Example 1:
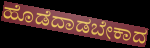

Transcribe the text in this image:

ಹೊಡೆದಾಡಬೇಕಾದ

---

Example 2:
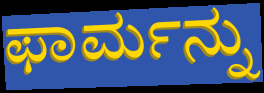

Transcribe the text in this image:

ಫಾರ್ಮನ್ನು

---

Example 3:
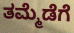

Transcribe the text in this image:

ತಮ್ಮೆಡೆಗೆ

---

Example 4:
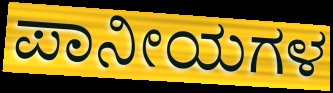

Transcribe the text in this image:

ಪಾನೀಯಗಳ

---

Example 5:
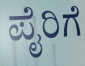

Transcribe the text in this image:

ಪೈರಿಗೆ